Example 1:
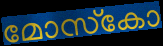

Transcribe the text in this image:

മോസ്‌കോ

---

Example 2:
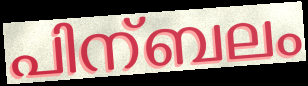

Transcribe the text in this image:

പിന്ബലം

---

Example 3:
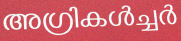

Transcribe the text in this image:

അഗ്രികൾച്ചർ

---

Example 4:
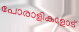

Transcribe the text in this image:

പോരാളികളോട്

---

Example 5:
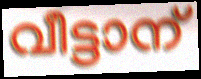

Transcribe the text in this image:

വീട്ടാന്